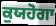
ਕੁਯਹੋਗਾ